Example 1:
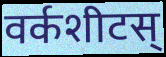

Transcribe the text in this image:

वर्कशीटस्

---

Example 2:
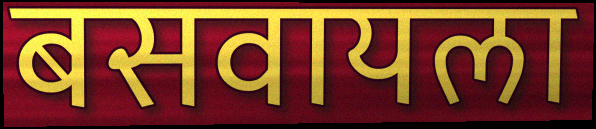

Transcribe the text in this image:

बसवायला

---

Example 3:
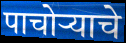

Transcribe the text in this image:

पाचोऱ्याचे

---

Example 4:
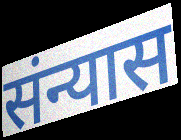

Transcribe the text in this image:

संन्यास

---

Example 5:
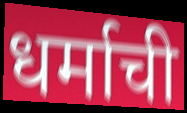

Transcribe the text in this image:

धर्माची